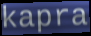
kapra